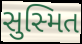
સુસ્મિત